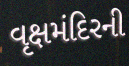
વૃક્ષમંદિરની